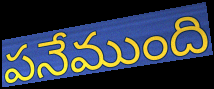
పనేముంది